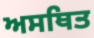
ਅਸਥਿਤ